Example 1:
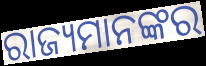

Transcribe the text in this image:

ରାଜ୍ୟମାନଙ୍କର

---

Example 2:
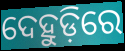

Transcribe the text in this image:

ଦେହୁଡ଼ିରେ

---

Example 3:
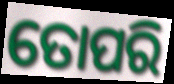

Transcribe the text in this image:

ତୋପରି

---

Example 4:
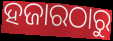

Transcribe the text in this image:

ହଜାରଠାରୁ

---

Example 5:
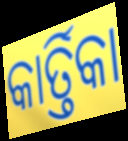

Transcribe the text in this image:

କାର୍ତ୍ତିକା